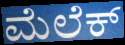
ಮೆಲೆಕ್